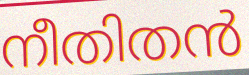
നീതിതൻ